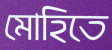
মোহিতে